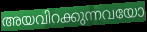
അയവിറക്കുന്നവയോ